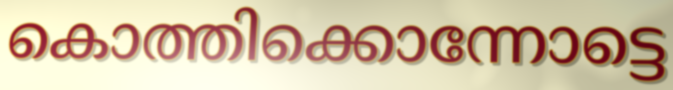
കൊത്തിക്കൊന്നോട്ടെ